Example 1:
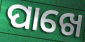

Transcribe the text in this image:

ପାଖେ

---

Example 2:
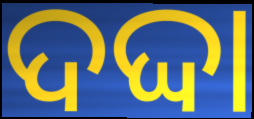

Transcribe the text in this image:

ଦଦ୍ଦା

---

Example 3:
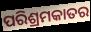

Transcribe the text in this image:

ପରିଶ୍ରମକାତର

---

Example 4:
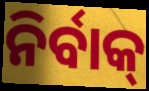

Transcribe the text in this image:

ନିର୍ବାକ୍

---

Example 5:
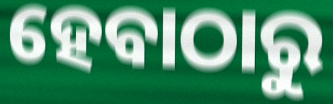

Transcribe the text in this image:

ହେବାଠାରୁ